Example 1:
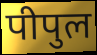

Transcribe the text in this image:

पीपुल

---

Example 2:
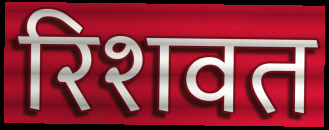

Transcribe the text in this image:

रिशवत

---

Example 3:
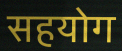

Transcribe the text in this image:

सहयोग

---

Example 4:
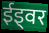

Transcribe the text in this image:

ईइ्वर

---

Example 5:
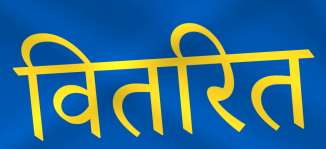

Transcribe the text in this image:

वितरित